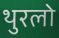
थुरलो